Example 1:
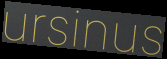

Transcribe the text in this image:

ursinus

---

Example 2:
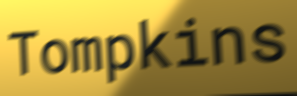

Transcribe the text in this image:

Tompkins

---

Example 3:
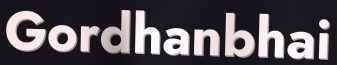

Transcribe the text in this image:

Gordhanbhai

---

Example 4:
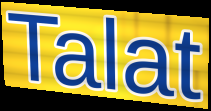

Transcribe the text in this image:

Talat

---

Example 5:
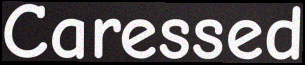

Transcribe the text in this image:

Caressed